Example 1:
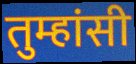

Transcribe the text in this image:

तुम्हांसी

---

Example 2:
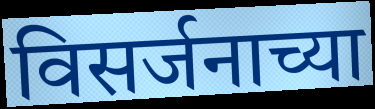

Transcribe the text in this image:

विसर्जनाच्या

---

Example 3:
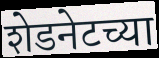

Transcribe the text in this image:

शेडनेटच्या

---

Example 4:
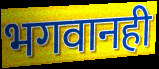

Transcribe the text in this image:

भगवानही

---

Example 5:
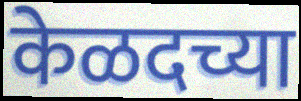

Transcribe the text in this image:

केळदच्या